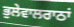
ਭੁਲੇਵਾਲਰਾਠਾਂ